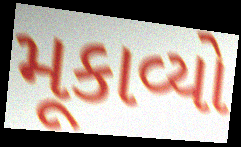
મૂકાવ્યો